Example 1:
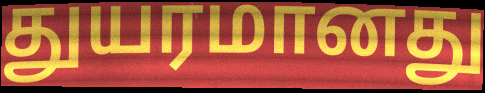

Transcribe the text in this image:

துயரமானது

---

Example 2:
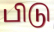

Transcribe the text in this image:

பிடு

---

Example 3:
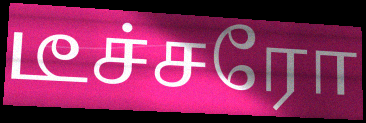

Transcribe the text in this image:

டீச்சரோ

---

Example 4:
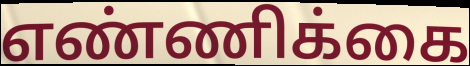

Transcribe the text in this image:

எண்ணிக்கை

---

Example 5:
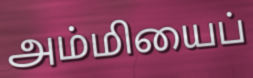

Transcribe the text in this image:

அம்மியைப்